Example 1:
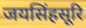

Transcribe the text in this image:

जयसिंहसूरि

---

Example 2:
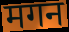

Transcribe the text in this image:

मगन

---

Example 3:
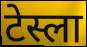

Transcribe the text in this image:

टेस्ला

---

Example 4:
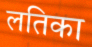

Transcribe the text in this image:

लतिका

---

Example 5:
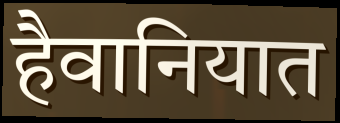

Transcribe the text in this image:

हैवानियात